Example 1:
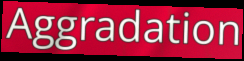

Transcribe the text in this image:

Aggradation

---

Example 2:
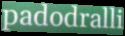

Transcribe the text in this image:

padodralli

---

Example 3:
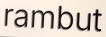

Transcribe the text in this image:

rambut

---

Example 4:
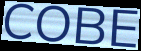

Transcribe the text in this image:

COBE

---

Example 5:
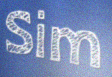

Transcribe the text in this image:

Sim